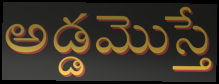
అడ్డమొస్తే